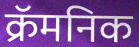
क्रॅमनिक